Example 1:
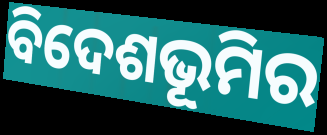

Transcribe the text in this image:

ବିଦେଶଭୂମିର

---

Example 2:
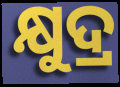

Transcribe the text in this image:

କ୍ଷୁଦ୍ର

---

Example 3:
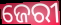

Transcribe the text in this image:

ଜେରୀ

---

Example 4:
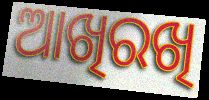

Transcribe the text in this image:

ଆଖିରଖି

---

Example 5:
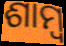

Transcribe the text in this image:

ଶାମ୍ୱ